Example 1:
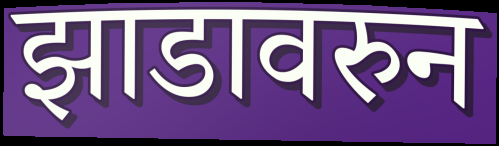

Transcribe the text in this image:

झाडावरुन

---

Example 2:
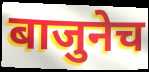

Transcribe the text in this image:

बाजुनेच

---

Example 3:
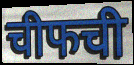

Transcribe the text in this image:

चीफची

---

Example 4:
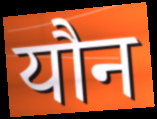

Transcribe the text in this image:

यौन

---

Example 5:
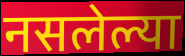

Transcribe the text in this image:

नसलेल्या